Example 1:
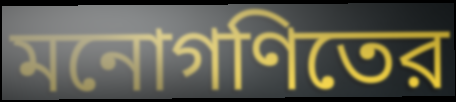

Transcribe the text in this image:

মনোগণিতের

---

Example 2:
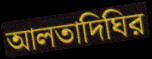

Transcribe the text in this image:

আলতাদিঘির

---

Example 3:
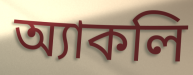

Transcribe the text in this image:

অ্যাকলি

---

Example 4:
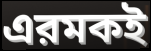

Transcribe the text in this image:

এরমকই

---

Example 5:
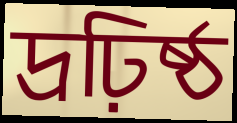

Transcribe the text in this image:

দ্রঢ়িষ্ঠ